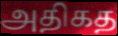
அதிகத